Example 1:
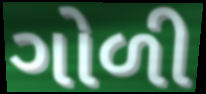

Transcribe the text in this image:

ગોળી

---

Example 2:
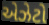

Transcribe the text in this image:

એઝેટો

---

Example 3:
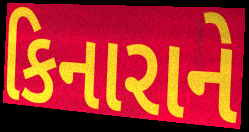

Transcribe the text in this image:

કિનારાને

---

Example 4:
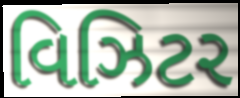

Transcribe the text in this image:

વિઝિટર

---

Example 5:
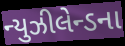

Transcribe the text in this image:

ન્યુઝીલેન્ડના